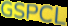
GSPCL